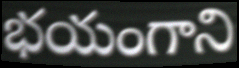
భయంగాని